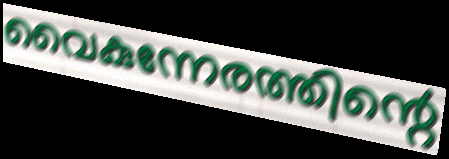
വൈകുന്നേരത്തിന്റെ